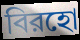
বিরহো